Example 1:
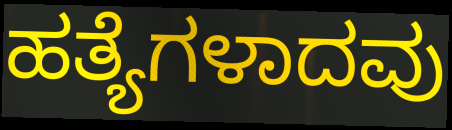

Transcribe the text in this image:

ಹತ್ಯೆಗಳಾದವು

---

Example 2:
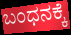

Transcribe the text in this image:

ಬಂಧನಕ್ಕೆ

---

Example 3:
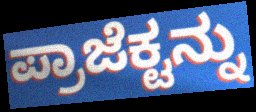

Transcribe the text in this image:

ಪ್ರಾಜೆಕ್ಟನ್ನು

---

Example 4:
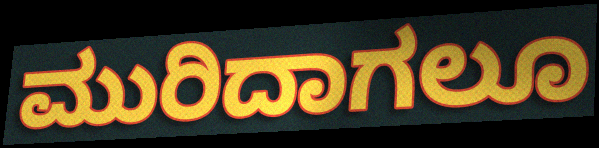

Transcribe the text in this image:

ಮುರಿದಾಗಲೂ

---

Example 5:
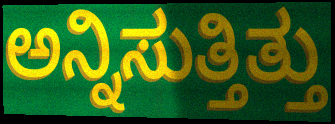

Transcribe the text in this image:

ಅನ್ನಿಸುತ್ತಿತ್ತು